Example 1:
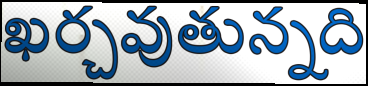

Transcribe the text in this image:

ఖర్చవుతున్నది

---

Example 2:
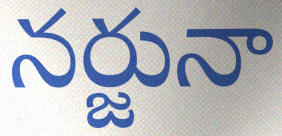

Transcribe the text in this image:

నర్జునా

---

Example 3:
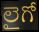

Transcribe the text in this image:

లైగో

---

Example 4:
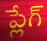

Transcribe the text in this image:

ప్లేగ్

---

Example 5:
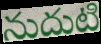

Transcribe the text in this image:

నుదుటి